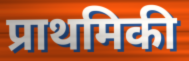
प्राथमिकी